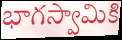
భాగస్వామికి